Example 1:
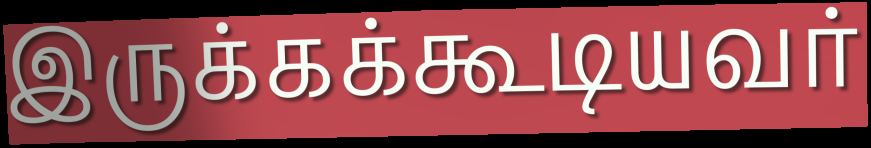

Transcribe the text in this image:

இருக்கக்கூடியவர்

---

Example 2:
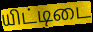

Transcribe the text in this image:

யிட்டிடை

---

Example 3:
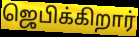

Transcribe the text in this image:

ஜெபிக்கிறார்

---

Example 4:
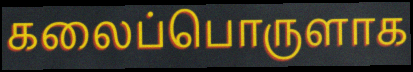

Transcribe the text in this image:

கலைப்பொருளாக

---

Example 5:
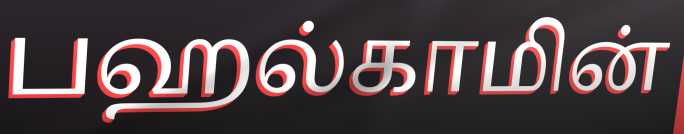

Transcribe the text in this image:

பஹல்காமின்